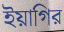
ইয়াগির